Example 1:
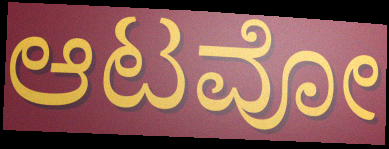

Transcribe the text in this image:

ಆಟವೋ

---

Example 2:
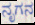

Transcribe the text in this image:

ನೃಗನ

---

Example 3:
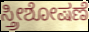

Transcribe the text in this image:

ಸ್ತ್ರೀಶೋಷಣೆ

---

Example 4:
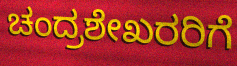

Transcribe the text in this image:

ಚಂದ್ರಶೇಖರರಿಗೆ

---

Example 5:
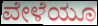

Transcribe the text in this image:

ವೇಳೆಯೂ